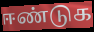
ஈண்டுக